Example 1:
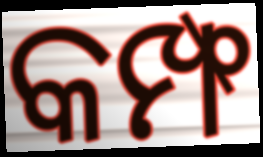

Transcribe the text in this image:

କମ୍ଫ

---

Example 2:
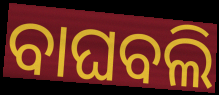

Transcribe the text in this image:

ବାଘବଲି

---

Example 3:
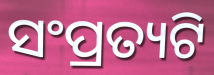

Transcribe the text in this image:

ସଂପ୍ରତ୍ୟଟି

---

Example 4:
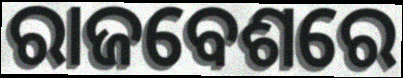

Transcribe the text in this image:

ରାଜବେଶରେ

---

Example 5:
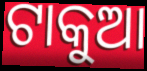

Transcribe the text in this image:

ଟାକୁଆ